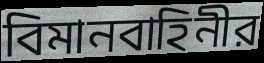
বিমানবাহিনীর